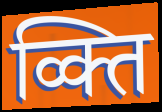
व्क्ति